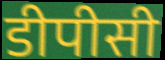
डीपीसी